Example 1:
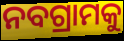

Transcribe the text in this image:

ନବଗ୍ରାମକୁ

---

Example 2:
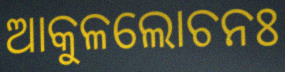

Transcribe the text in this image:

ଆକୁଳଲୋଚନଃ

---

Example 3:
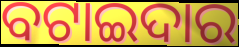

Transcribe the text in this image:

ବଟାଇଦାର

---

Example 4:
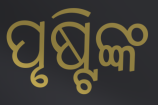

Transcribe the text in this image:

ପୃଷ୍ଟିଙ୍କ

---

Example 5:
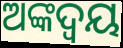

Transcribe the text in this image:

ଅଙ୍କଦ୍ବୟ